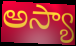
అస్యా